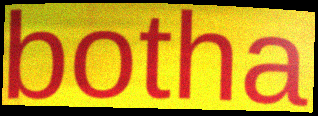
botha